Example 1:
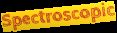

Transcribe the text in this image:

Spectroscopic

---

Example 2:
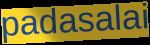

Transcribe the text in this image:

padasalai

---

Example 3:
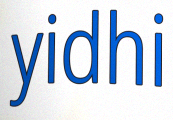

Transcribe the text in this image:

yidhi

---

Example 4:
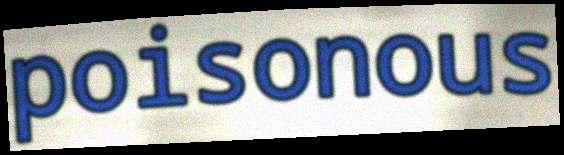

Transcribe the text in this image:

poisonous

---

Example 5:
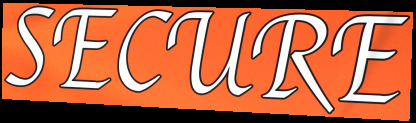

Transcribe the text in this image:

SECURE